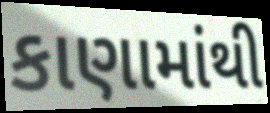
કાણામાંથી